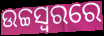
ଉଚ୍ଚସ୍ୱରରେ